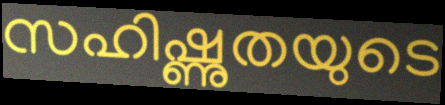
സഹിഷ്ണുതയുടെ